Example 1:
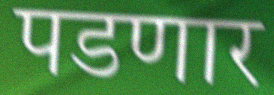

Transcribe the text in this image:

पडणार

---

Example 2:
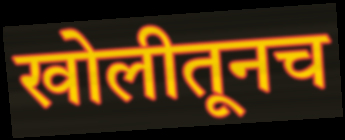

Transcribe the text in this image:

खोलीतूनच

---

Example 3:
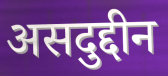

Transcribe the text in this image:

असदुद्दीन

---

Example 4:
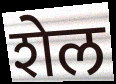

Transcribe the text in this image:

शेल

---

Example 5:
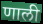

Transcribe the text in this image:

णाली